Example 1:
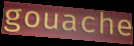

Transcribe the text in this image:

gouache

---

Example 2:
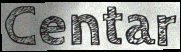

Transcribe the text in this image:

Centar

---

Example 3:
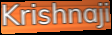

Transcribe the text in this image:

Krishnaji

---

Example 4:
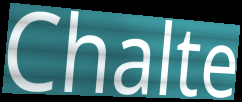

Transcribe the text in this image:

Chalte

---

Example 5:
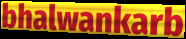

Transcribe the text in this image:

bhalwankarb